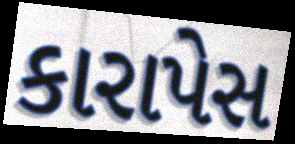
કારાપેસ